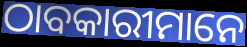
ଠାବକାରୀମାନେ